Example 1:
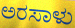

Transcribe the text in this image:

ಅರಸಾಳು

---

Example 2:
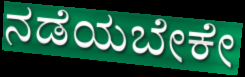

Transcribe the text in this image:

ನಡೆಯಬೇಕೇ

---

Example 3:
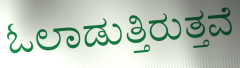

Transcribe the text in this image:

ಓಲಾಡುತ್ತಿರುತ್ತವೆ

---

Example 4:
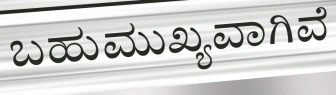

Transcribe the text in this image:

ಬಹುಮುಖ್ಯವಾಗಿವೆ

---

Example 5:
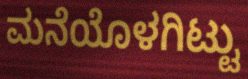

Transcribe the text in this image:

ಮನೆಯೊಳಗಿಟ್ಟು